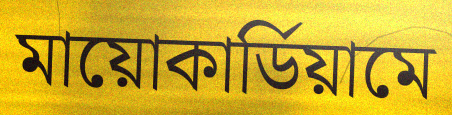
মায়োকার্ডিয়ামে